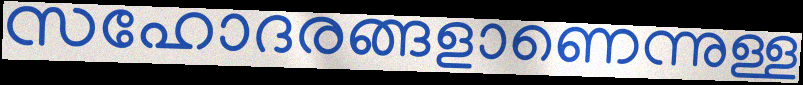
സഹോദരങ്ങളാണെന്നുള്ള